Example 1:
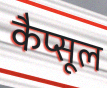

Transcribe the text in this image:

कैप्सूल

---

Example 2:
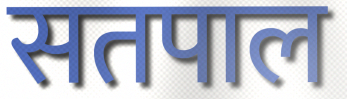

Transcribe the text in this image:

सतपाल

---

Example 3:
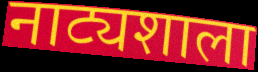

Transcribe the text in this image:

नाट्यशाला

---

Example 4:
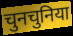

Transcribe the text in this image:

चुनचुनिया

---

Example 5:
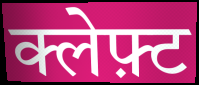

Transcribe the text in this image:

क्लेफ़्ट